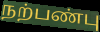
நற்பண்பு